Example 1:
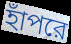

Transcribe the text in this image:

হাঁপরে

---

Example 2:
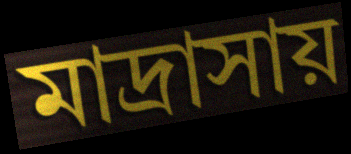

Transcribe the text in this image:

মাদ্রাসায়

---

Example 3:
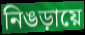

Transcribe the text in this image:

নিঙড়ায়ে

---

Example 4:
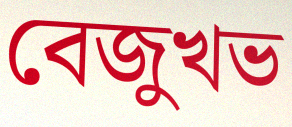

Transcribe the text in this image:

বেজুখভ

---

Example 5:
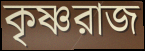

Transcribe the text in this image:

কৃষ্ণরাজ